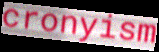
cronyism